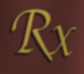
Rx